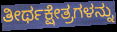
ತೀರ್ಥಕ್ಷೇತ್ರಗಳನ್ನು